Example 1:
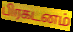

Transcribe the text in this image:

பிரகடனம்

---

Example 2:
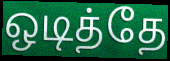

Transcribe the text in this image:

ஒடித்தே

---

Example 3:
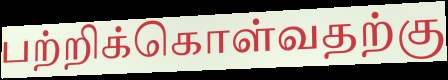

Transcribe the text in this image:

பற்றிக்கொள்வதற்கு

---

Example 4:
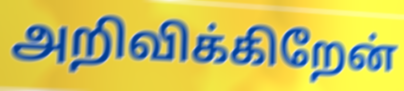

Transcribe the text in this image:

அறிவிக்கிறேன்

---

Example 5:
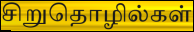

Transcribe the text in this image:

சிறுதொழில்கள்